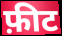
फ़ीट